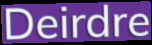
Deirdre